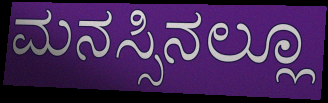
ಮನಸ್ಸಿನಲ್ಲೂ